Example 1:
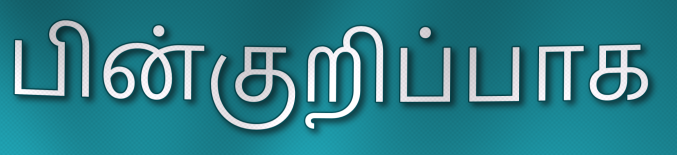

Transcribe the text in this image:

பின்குறிப்பாக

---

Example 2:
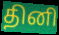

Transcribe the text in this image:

தினி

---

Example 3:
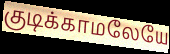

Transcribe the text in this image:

குடிக்காமலேயே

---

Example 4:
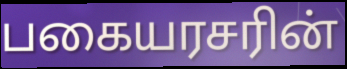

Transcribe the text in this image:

பகையரசரின்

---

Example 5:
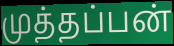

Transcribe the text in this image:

முத்தப்பன்